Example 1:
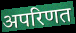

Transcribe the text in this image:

अपरिणत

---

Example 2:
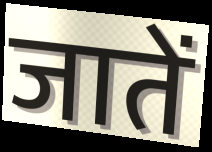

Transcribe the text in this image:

जातें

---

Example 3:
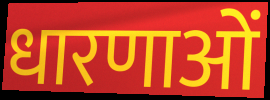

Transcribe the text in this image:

धारणाओं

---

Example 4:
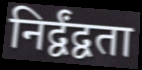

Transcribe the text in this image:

निर्द्वंद्वता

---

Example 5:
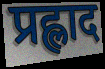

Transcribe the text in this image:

प्रह्लाद